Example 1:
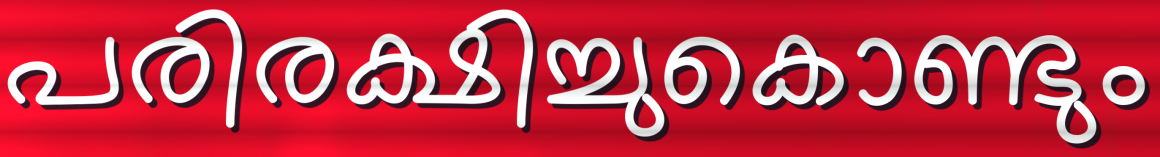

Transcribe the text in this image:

പരിരക്ഷിച്ചുകൊണ്ടും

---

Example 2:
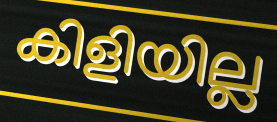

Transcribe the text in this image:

കിളിയില്ല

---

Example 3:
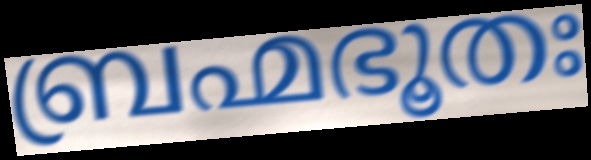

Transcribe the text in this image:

ബ്രഹ്മഭൂതഃ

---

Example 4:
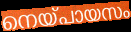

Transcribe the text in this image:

നെയ്പായസം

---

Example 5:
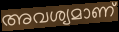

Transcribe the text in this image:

അവശ്യമാണ്